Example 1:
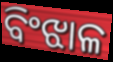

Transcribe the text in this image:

ବିଂଝାଳ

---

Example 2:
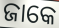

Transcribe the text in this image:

ଜାକେ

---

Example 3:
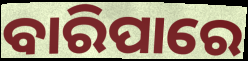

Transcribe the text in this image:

ବାରିପାରେ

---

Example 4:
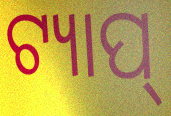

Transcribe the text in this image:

ଟ୍ୟାପ୍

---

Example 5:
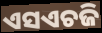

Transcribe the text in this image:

ଏସଏଚଜି